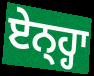
ਏਨ੍ਹ੍ਹਾ